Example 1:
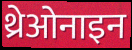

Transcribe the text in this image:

थ्रेओनाइन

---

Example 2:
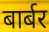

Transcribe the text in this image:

बार्बर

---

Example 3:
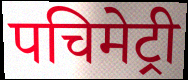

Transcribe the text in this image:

पचिमेट्री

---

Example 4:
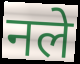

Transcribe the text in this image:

नले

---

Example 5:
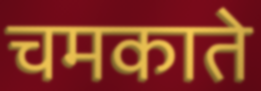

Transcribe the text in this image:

चमकाते